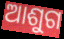
ଆଶୁଗ